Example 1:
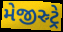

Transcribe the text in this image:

મેજીસ્ર્ટ્રે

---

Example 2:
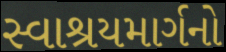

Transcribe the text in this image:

સ્વાશ્રયમાર્ગનો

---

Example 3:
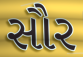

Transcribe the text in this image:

સૌર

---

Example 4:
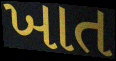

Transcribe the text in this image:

ખાત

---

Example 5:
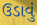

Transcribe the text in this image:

ઉડાવું